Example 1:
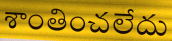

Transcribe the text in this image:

శాంతించలేదు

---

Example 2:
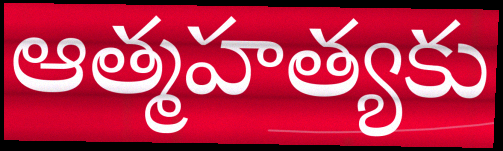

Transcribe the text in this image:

ఆత్మహత్యకు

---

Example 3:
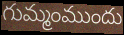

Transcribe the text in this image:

గుమ్మంముందు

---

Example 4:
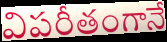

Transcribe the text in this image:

విపరీతంగానే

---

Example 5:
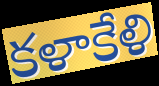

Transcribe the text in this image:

కళాకేళి